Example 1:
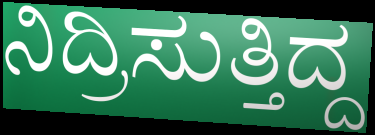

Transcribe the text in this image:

ನಿದ್ರಿಸುತ್ತಿದ್ದ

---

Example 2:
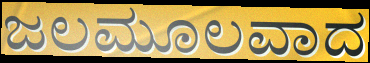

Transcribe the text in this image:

ಜಲಮೂಲವಾದ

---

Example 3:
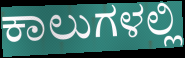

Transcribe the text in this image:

ಕಾಲುಗಳಲ್ಲಿ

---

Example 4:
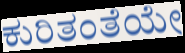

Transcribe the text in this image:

ಕುರಿತಂತೆಯೇ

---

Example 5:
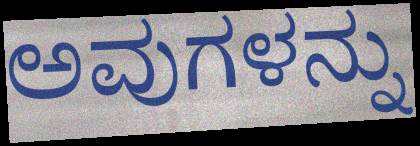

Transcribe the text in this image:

ಅವುಗಳನ್ನು